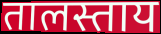
तालस्ताय